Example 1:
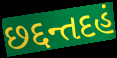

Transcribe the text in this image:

છદ્દન્તદહં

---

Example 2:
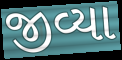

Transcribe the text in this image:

જીવ્યા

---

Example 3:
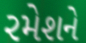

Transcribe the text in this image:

રમેશને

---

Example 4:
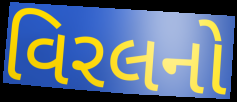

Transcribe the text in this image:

વિરલનો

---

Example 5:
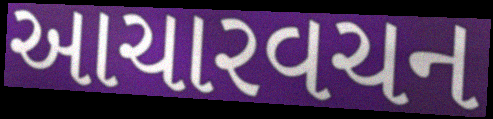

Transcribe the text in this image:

આચારવચન